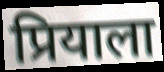
प्रियाला